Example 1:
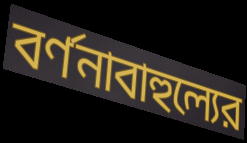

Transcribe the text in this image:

বর্ণনাবাহুল্যের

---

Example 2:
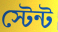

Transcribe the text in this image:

স্টেন্ট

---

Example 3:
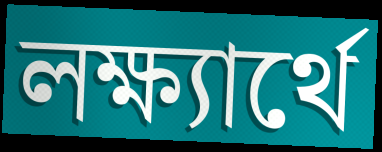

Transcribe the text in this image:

লক্ষ্যার্থে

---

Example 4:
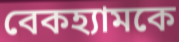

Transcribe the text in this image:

বেকহ্যামকে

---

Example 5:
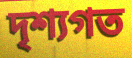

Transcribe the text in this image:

দৃশ্যগত